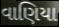
વાણિયા